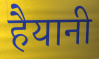
हैयानी